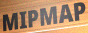
MIPMAP